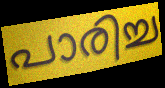
പാരിച്ച